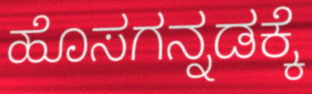
ಹೊಸಗನ್ನಡಕ್ಕೆ